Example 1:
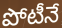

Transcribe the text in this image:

పోటీనే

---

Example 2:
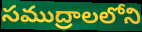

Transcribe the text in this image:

సముద్రాలలోని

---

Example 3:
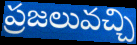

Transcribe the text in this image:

ప్రజలువచ్చి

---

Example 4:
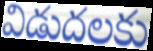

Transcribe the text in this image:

విడుదలకు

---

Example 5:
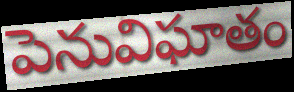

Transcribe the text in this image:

పెనువిఘాతం